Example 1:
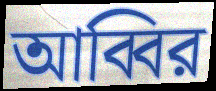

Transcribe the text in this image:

আব্বির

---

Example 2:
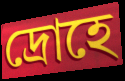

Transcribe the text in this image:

দ্রোহে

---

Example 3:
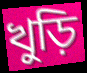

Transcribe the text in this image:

খুড়ি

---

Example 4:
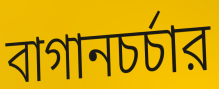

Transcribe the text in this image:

বাগানচর্চার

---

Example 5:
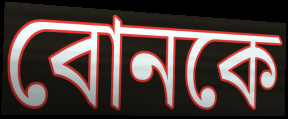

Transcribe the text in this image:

বোনকে